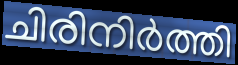
ചിരിനിർത്തി